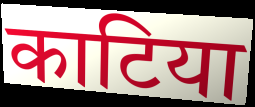
काटिया